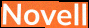
Novell